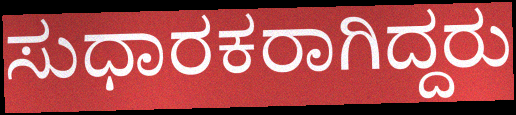
ಸುಧಾರಕರಾಗಿದ್ದರು